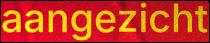
aangezicht